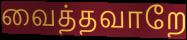
வைத்தவாறே